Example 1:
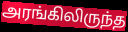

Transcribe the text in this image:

அரங்கிலிருந்த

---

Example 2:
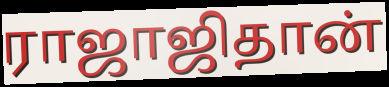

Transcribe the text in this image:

ராஜாஜிதான்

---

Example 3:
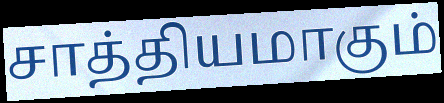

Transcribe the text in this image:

சாத்தியமாகும்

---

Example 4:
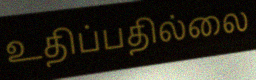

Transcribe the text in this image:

உதிப்பதில்லை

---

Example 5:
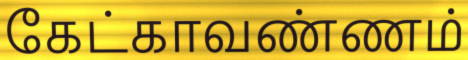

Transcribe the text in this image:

கேட்காவண்ணம்